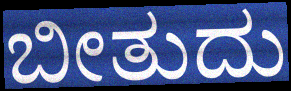
ಬೀತುದು